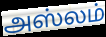
அஸ்லம்